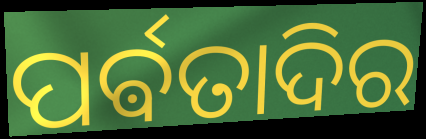
ପର୍ଵତାଦିର